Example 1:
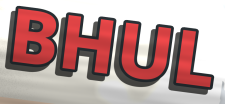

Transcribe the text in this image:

BHUL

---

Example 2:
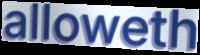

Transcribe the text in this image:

alloweth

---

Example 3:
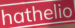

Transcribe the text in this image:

hathelio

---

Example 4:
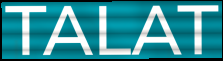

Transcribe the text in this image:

TALAT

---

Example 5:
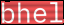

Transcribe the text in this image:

bhel